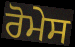
ਰੋਮੇਸ